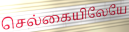
செல்கையிலேயே